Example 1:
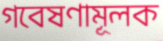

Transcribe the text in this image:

গবেষণামূলক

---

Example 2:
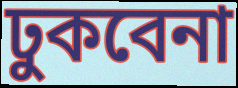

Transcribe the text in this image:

ঢুকবেনা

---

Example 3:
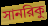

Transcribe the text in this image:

সানরিকু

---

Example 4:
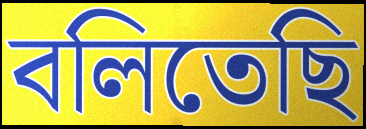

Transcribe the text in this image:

বলিতেছি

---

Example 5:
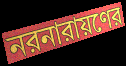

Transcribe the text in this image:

নরনারায়ণের